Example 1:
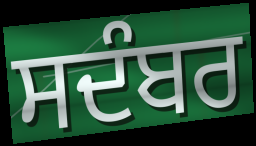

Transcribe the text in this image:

ਸਦੰਬਰ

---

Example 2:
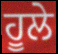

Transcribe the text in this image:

ਹੂਲੇ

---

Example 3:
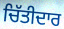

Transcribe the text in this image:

ਚਿੱਤੀਦਾਰ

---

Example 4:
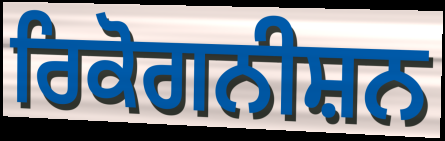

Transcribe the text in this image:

ਰਿਕੋਗਨੀਸ਼ਨ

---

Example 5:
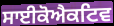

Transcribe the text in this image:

ਸਾਈਕੋਐਕਟਿਵ